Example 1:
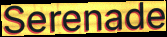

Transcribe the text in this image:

Serenade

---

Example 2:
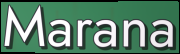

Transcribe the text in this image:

Marana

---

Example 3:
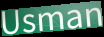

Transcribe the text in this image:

Usman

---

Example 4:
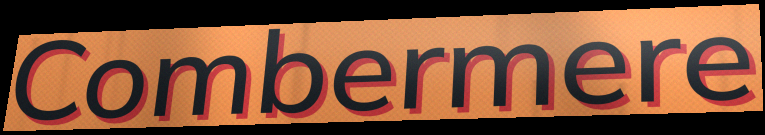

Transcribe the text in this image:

Combermere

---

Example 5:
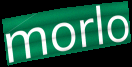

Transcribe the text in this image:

morlo